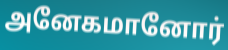
அனேகமானோர்